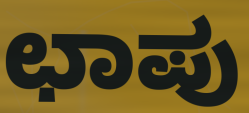
ಛಾಪು